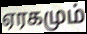
ஏரகமும்